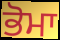
ਭੋਮਾ